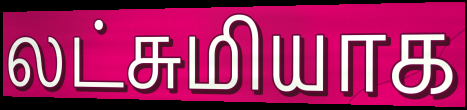
லட்சுமியாக